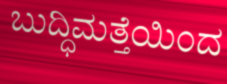
ಬುದ್ಧಿಮತ್ತೆಯಿಂದ